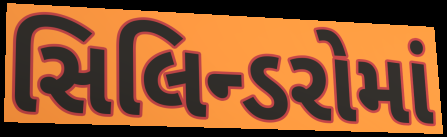
સિલિન્ડરોમાં